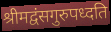
श्रीमद्वंसगुरुपध्दति